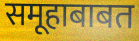
समूहाबाबत